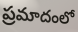
ప్రమాదంలో